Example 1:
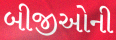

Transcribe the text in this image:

બીજીઓની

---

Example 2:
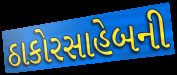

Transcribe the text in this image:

ઠાકોરસાહેબની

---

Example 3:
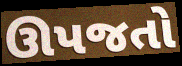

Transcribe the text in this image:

ઊપજતો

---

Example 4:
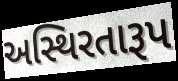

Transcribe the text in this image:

અસ્થિરતારૂપ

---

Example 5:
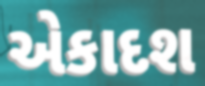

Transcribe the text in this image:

એકાદશ